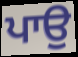
ਪਾਉ